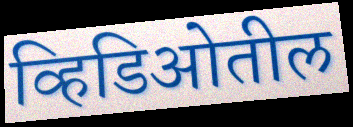
व्हिडिओतील